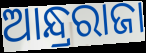
ଆନ୍ଧ୍ରରାଜା